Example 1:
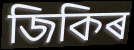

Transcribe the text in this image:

জিকিৰ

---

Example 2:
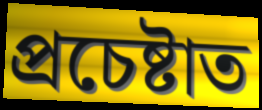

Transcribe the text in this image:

প্ৰচেষ্টাত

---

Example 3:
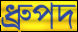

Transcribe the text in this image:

ধ্ৰুপদ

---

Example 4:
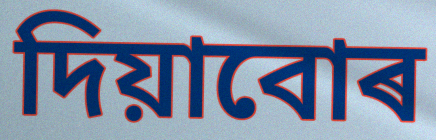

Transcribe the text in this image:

দিয়াবোৰ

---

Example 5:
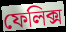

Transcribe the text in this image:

ফেলিক্স